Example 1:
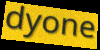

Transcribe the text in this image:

dyone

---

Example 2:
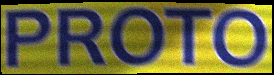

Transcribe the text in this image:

PROTO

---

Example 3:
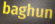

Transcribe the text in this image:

baghun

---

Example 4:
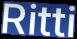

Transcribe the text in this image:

Ritti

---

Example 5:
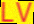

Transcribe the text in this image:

LV